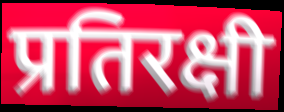
प्रतिरक्षी